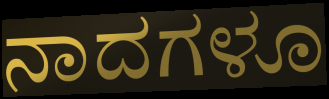
ನಾದಗಳೂ